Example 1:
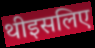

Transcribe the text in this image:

थीइसलिए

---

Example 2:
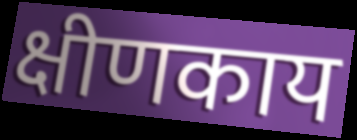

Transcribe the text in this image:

क्षीणकाय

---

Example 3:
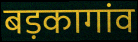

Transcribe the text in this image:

बड़कागांव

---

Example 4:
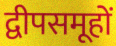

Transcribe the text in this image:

द्वीपसमूहों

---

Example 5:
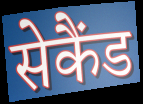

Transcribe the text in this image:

सेकैंड